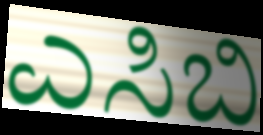
ಎಸಿಬಿ